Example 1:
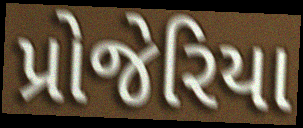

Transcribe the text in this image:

પ્રોજેરિયા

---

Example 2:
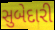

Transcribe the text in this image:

સુબેદારી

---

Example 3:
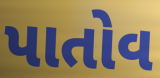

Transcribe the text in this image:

પાતોવ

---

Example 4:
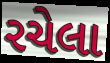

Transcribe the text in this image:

રચેલા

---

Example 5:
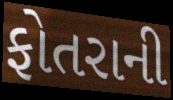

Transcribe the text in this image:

ફોતરાની